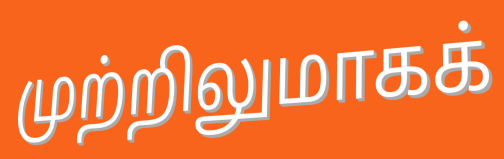
முற்றிலுமாகக்